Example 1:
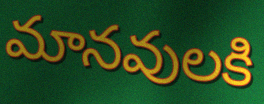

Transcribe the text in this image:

మానవులకి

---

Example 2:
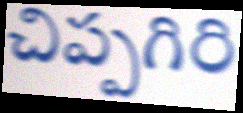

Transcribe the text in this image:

చిప్పగిరి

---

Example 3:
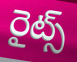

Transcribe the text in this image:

రైట్స్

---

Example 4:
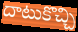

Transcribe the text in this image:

దాటుకొచ్చి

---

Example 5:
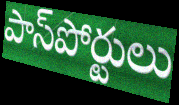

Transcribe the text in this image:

పాస్‌పోర్టులు